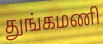
துங்கமணி